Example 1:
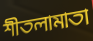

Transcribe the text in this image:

শীতলামাতা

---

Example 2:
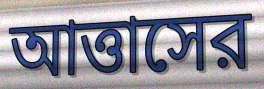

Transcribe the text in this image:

আত্তাসের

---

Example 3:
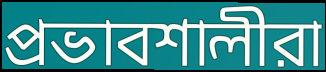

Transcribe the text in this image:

প্রভাবশালীরা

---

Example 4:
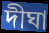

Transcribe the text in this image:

দীঘা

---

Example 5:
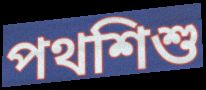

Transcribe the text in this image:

পথশিশু